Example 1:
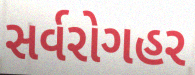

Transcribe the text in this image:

સર્વરોગહર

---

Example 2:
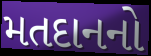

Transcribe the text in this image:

મતદાનનો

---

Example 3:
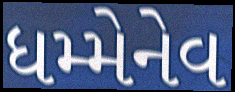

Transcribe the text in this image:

ધમ્મેનેવ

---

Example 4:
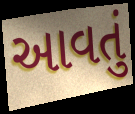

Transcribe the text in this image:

આવતું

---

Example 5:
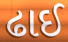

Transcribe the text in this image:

ઢાઈ